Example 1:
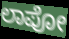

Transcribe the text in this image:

ಲಾಪೋ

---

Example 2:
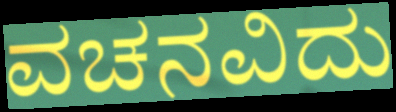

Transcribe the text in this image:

ವಚನವಿದು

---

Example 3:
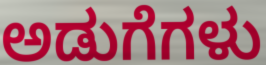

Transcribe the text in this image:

ಅಡುಗೆಗಳು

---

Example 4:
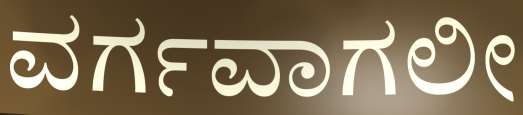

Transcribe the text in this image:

ವರ್ಗವಾಗಲೀ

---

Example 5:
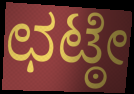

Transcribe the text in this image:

ಛಟ್ಠೇ